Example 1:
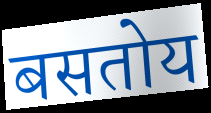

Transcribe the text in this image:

बसतोय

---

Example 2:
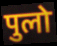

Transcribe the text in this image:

पुलो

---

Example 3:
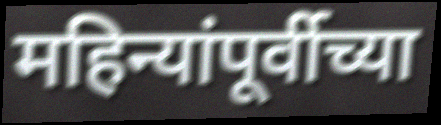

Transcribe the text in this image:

महिन्यांपूर्वीच्या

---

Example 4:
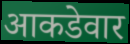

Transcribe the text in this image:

आकडेवार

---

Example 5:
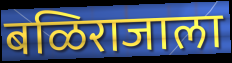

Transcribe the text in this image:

बळिराजाला